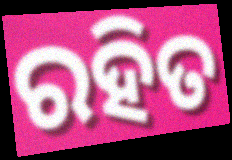
ରହିତ